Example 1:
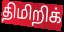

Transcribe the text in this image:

திமிறிக்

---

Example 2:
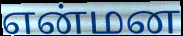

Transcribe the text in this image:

என்மன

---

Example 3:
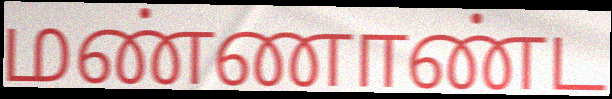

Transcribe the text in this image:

மண்ணாண்ட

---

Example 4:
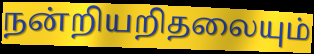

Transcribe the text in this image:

நன்றியறிதலையும்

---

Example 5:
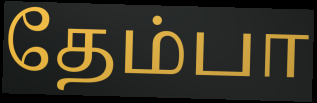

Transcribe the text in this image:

தேம்பா